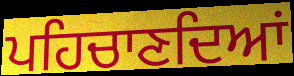
ਪਹਿਚਾਣਦਿਆਂ